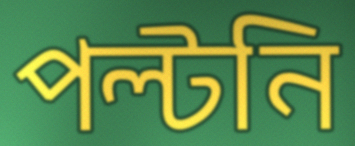
পল্টনি